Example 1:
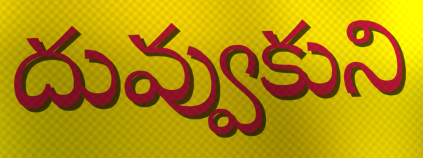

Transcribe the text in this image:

దువ్వుకుని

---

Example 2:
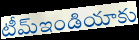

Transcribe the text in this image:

టీమ్ఇండియాకు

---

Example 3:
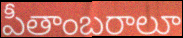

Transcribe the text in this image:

పీతాంబరాలూ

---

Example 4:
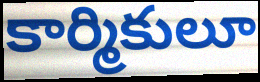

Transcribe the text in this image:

కార్మికులూ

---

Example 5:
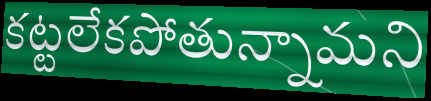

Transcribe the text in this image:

కట్టలేకపోతున్నామని